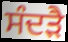
ਸੰਦੜੈ